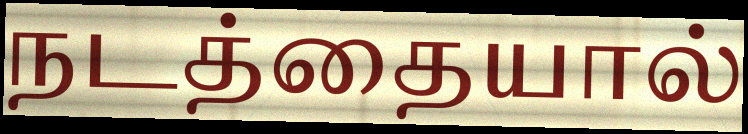
நடத்தையால்